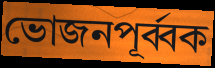
ভোজনপূর্ব্বক